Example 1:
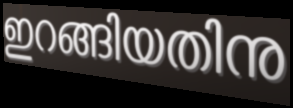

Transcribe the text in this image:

ഇറങ്ങിയതിനു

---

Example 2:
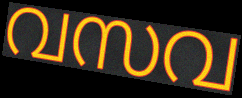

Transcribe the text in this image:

വസവ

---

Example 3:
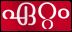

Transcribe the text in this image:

ഏറ്റം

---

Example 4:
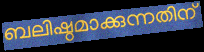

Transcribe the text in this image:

ബലിഷ്ഠമാക്കുന്നതിന്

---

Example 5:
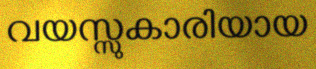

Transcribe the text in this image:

വയസ്സുകാരിയായ